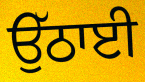
ਉੱਠਾਈ